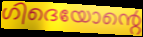
ഗിദെയോന്റെ